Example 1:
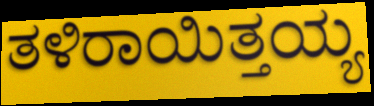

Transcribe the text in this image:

ತಳಿರಾಯಿತ್ತಯ್ಯ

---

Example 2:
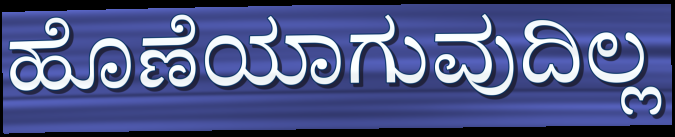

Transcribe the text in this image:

ಹೊಣೆಯಾಗುವುದಿಲ್ಲ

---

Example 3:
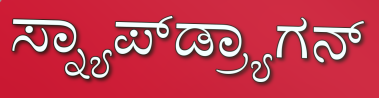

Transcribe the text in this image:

ಸ್ನ್ಯಾಪ್‌ಡ್ರ್ಯಾಗನ್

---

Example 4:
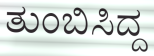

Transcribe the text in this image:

ತುಂಬಿಸಿದ್ದ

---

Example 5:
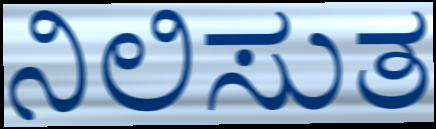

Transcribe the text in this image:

ನಿಲಿಸುತ